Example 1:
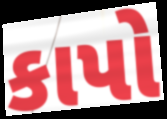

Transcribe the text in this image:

કાપો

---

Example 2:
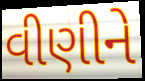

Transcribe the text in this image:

વીણીને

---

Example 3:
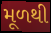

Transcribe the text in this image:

મૂળથી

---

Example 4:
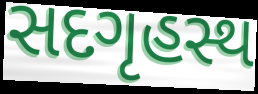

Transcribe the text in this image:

સદગૃહસ્થ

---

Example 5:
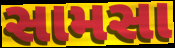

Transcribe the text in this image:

સામસા